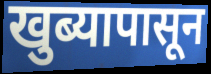
खुब्यापासून